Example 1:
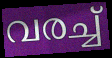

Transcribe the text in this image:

വരച്ച്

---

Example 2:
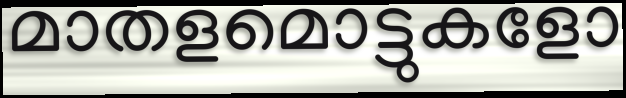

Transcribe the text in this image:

മാതളമൊട്ടുകളോ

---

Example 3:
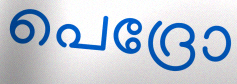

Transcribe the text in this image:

പെദ്രോ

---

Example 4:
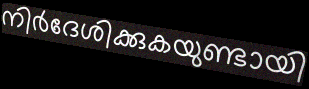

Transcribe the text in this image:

നിർദേശിക്കുകയുണ്ടായി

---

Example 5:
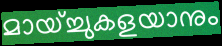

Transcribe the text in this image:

മായ്ച്ചുകളയാനും